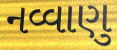
નવ્વાણુ